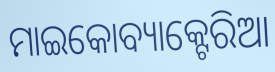
ମାଇକୋବ୍ୟାକ୍ଟେରିଆ